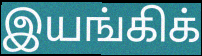
இயங்கிக்